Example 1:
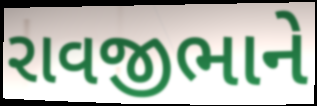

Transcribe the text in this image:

રાવજીભાને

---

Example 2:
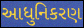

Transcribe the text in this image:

આધુનિકરણ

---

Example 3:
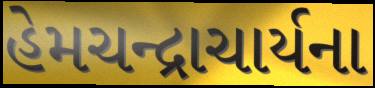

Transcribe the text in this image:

હેમચન્દ્રાચાર્યના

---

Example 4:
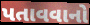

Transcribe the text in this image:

પતાવવાનો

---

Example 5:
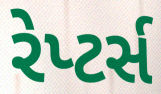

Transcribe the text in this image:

રેપ્ટર્સ